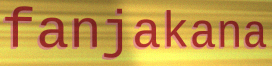
fanjakana